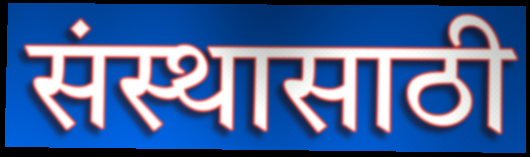
संस्थासाठी